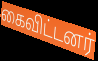
கைவிட்டனர்